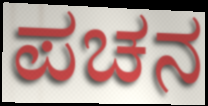
ಪಚನ